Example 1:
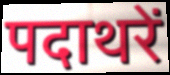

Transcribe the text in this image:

पदाथरें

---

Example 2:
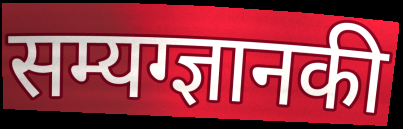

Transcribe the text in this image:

सम्यग्ज्ञानकी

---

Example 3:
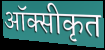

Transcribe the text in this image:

ऑक्सीकृत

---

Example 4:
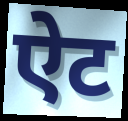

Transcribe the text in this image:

ऐट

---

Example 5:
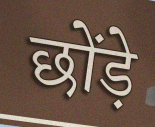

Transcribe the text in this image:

छोंड़े